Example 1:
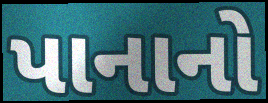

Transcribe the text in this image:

પાનાનો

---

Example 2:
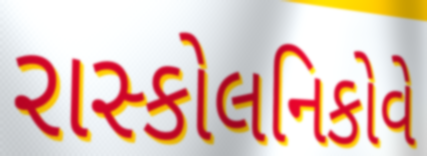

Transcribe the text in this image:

રાસ્કોલનિકોવે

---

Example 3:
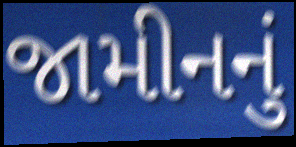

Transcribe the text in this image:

જામીનનું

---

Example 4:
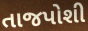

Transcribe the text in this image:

તાજપોશી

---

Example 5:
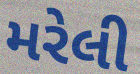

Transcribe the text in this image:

મરેલી